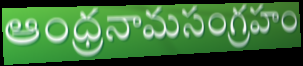
ఆంధ్రనామసంగ్రహం